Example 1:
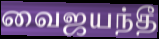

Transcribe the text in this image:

வைஜயந்தீ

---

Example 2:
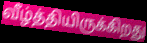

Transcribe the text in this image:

வீழ்த்தியிருக்கிறது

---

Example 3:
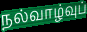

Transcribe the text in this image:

நல்வாழ்வுப்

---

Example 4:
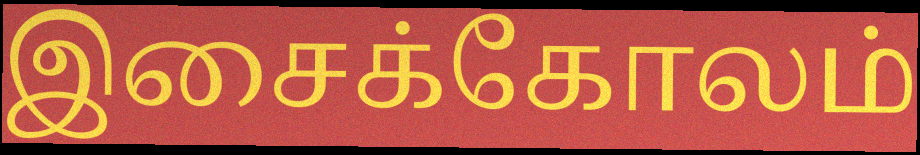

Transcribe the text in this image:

இசைக்கோலம்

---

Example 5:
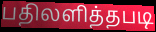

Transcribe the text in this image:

பதிலளித்தபடி